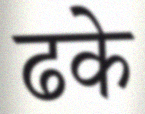
ढके